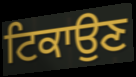
ਟਿਕਾਉਣ